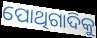
ପୋଥିଗାଦିକୁ